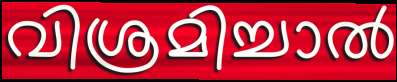
വിശ്രമിച്ചാൽ